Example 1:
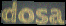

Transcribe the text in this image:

dosa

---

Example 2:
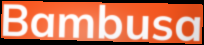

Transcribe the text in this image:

Bambusa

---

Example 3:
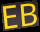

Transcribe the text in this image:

EB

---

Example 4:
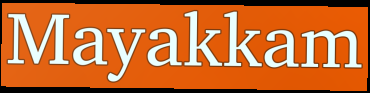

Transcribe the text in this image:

Mayakkam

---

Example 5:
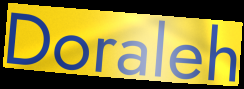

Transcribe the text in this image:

Doraleh